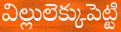
విల్లులెక్కుపెట్టి